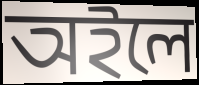
অইলে